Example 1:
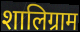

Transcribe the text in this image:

शालिग्राम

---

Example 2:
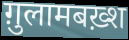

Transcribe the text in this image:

ग़ुलामबख़्श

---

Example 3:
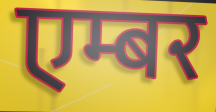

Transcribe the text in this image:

एम्बर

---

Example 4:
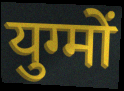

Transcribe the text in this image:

युग्मों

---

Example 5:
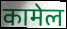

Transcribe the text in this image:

कामेल